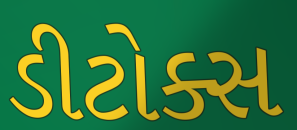
ડીટોક્સ